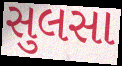
સુલસા